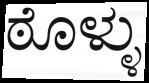
ಠೊಳ್ಳು